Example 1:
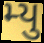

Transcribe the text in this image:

મ્યુ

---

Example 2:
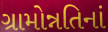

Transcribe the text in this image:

ગ્રામોન્નતિનાં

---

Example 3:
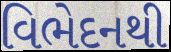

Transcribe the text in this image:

વિભેદનથી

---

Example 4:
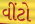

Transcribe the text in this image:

વીંટો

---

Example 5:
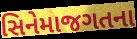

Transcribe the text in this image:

સિનેમાજગતના